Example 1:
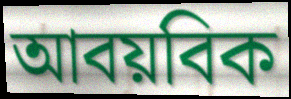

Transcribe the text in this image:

আবয়বিক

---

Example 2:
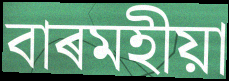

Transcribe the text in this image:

বাৰমহীয়া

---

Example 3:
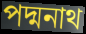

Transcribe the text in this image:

পদ্মনাথ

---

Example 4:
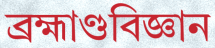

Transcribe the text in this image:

ব্ৰহ্মাণ্ডবিজ্ঞান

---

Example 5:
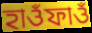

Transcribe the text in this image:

হাওঁফাওঁ